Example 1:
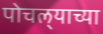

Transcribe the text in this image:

पोचल्याच्या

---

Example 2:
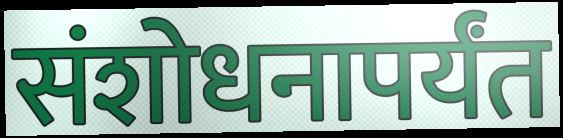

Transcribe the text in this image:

संशोधनापर्यंत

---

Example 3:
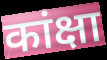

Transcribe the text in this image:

कांक्षा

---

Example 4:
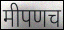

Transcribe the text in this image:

मीपणच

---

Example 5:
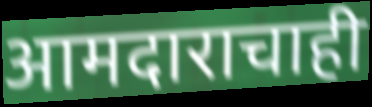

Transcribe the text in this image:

आमदाराचाही